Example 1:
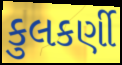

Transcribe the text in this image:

કુલકર્ણી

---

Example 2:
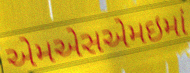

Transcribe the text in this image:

એમએસએમઇમાં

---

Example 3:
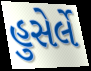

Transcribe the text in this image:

હુસેર્લે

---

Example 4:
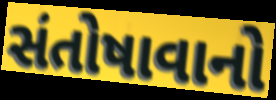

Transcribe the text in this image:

સંતોષાવાનો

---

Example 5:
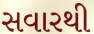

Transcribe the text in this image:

સવારથી